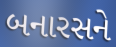
બનારસને